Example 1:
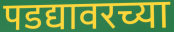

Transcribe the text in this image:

पडद्यावरच्या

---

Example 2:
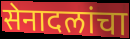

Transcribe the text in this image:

सेनादलांचा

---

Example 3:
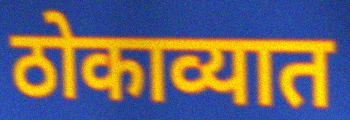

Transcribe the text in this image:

ठोकाव्यात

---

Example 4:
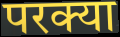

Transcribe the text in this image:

परक्या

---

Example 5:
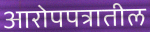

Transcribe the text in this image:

आरोपपत्रातील